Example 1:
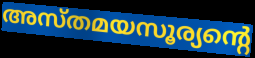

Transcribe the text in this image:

അസ്തമയസൂര്യന്റെ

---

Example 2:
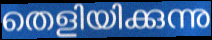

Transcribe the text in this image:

തെളിയിക്കുന്നു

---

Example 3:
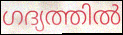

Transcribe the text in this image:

ഗദ്യത്തിൽ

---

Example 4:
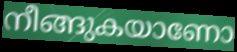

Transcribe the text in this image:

നീങ്ങുകയാണോ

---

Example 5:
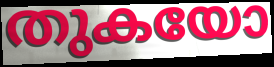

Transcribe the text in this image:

തുകയോ